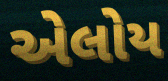
એલોય